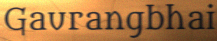
Gaurangbhai